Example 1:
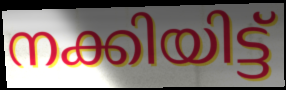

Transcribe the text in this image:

നക്കിയിട്ട്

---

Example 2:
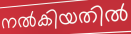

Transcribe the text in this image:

നൽകിയതിൽ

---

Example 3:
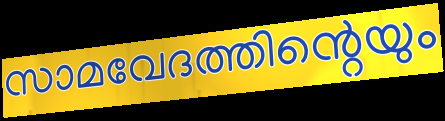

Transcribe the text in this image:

സാമവേദത്തിന്റെയും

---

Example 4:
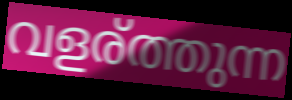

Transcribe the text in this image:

വളര്ത്തുന്ന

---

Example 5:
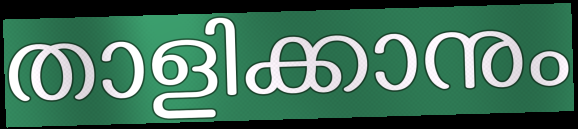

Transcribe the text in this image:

താളിക്കാനും